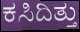
ಕಸಿದಿತ್ತು